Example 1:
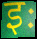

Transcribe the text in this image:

इः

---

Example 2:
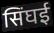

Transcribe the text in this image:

सिंघई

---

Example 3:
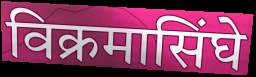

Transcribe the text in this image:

विक्रमासिंघे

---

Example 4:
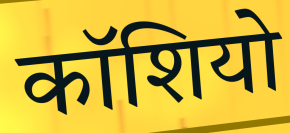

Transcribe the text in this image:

कॉशियो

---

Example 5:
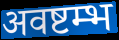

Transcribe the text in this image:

अवष्टम्भ